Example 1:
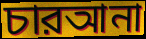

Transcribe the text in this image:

চারআনা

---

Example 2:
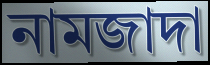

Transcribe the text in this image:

নামজাদা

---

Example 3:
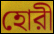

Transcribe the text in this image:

হোরী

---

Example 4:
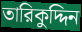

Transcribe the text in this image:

তারিকুদ্দিন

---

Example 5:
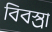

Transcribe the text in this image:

বিবস্ত্রা